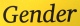
Gender